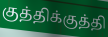
குத்திக்குத்தி